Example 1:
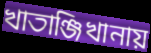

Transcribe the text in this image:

খাতাঞ্জিখানায়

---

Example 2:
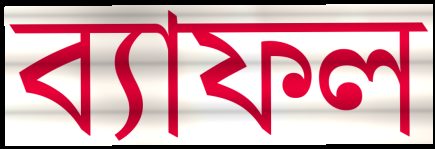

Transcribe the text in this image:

ব্যাফল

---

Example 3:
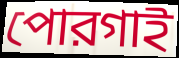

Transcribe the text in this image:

পোরগাই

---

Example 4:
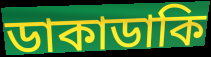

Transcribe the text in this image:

ডাকাডাকি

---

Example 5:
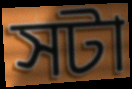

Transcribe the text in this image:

সটা